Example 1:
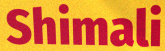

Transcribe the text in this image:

Shimali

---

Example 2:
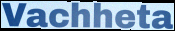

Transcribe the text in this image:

Vachheta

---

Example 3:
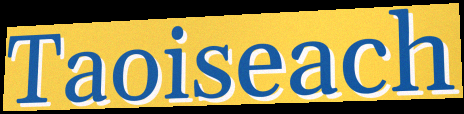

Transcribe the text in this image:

Taoiseach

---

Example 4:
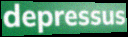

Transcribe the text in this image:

depressus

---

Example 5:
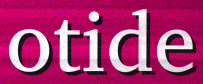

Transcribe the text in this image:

otide